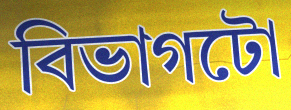
বিভাগটো